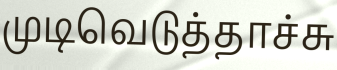
முடிவெடுத்தாச்சு